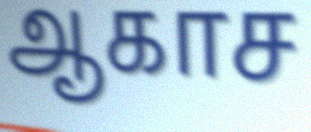
ஆகாச